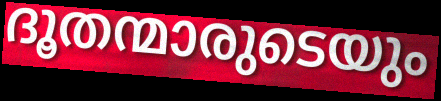
ദൂതന്മാരുടെയും